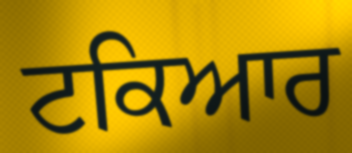
ਟਕਿਆਰ